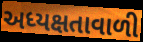
અધ્યક્ષતાવાળી